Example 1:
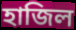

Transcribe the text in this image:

হাজিল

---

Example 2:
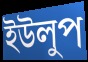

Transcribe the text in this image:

ইউলুপ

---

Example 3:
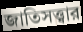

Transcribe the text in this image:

জাতিসত্ত্বার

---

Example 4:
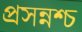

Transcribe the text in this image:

প্রসন্নশ্চ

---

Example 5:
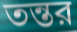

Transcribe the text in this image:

তন্তর